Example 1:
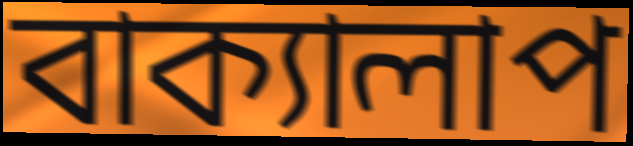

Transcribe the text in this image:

বাক্যালাপ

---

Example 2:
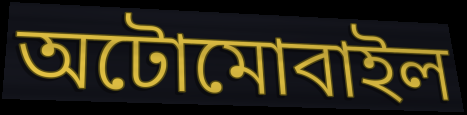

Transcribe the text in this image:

অটোমোবাইল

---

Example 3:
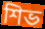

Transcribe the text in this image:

শিভ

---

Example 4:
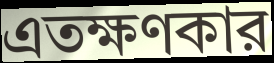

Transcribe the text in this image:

এতক্ষণকার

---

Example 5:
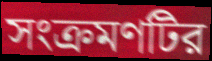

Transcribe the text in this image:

সংক্রমণটির